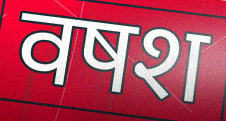
वषश